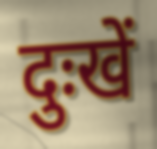
दुःखें